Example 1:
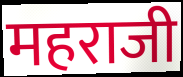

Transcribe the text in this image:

महराजी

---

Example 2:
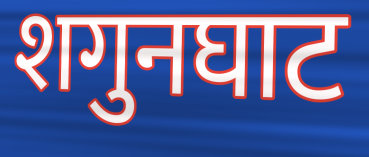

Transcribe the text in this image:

शगुनघाट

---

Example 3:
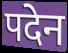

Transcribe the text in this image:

पदेन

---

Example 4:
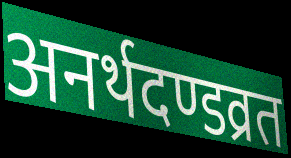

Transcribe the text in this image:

अनर्थदण्डव्रत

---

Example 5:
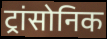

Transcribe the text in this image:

ट्रांसोनिक